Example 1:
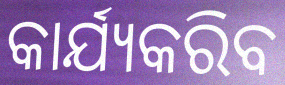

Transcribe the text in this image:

କାର୍ଯ୍ୟକରିବ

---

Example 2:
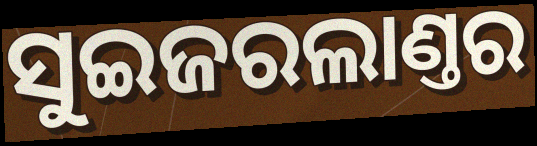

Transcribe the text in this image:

ସୁଇଜରଲାଣ୍ତର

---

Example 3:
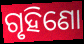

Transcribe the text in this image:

ଗୃହିଣୋ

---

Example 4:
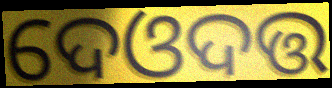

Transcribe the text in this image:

ଦେଓଦତ୍ତ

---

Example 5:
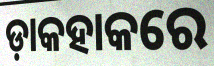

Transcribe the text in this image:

ଡ଼ାକହାକରେ